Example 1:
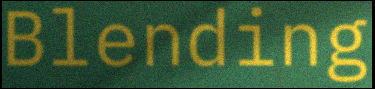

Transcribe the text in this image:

Blending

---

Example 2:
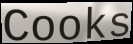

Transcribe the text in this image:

Cooks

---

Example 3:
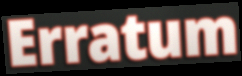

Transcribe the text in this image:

Erratum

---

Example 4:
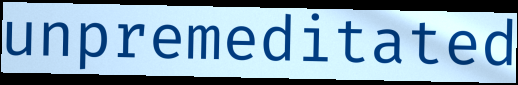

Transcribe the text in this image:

unpremeditated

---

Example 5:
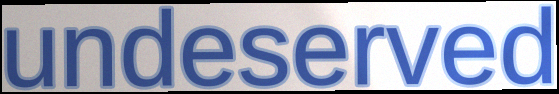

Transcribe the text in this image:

undeserved